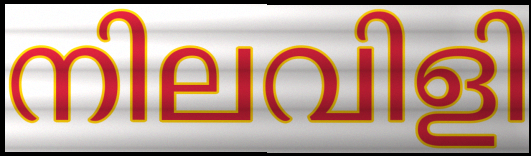
നിലവിളി